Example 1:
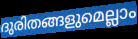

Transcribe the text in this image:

ദുരിതങ്ങളുമെല്ലാം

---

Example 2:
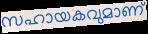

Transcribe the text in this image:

സഹായകവുമാണ്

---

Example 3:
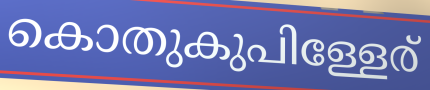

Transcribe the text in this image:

കൊതുകുപിള്ളേര്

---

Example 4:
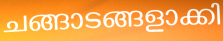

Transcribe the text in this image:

ചങ്ങാടങ്ങളാക്കി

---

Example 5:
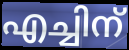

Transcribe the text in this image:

എച്ചിന്